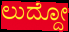
ಲುದ್ದೋ